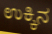
ಉಕ್ಕಿನ